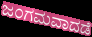
ಜಂಗಮವಾದಡೆ